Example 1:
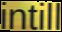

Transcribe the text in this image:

intill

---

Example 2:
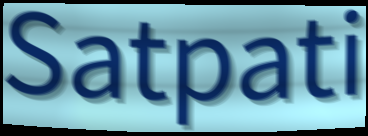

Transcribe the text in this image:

Satpati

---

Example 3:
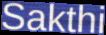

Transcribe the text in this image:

Sakthi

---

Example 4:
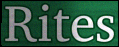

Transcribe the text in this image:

Rites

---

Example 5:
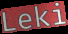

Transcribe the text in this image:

Leki